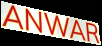
ANWAR